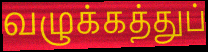
வழுக்கத்துப்